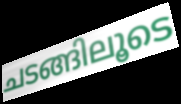
ചടങ്ങിലൂടെ